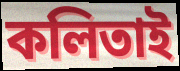
কলিতাই